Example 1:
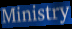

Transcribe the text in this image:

Ministry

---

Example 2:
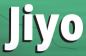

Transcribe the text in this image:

Jiyo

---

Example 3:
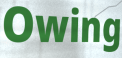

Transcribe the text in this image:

Owing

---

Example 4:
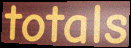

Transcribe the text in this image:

totals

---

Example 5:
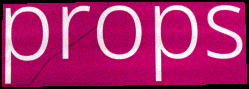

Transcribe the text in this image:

props